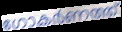
ഗോകർണത്ത്